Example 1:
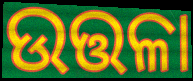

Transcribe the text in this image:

ଉତ୍ତଳା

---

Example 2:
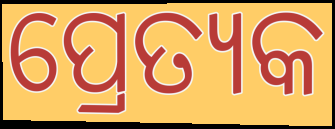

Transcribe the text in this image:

ପ୍ରେତ୍ୟକ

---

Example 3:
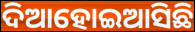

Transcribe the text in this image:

ଦିଆହୋଇଆସିଛି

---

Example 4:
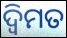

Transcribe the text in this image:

ଦ୍ୱିମତ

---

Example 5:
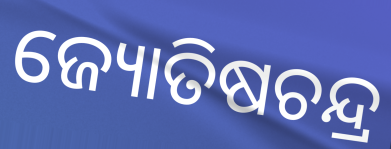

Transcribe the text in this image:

ଜ୍ୟୋତିଷଚନ୍ଦ୍ର